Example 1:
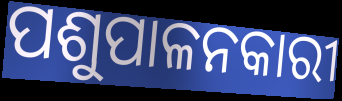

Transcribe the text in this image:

ପଶୁପାଳନକାରୀ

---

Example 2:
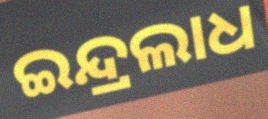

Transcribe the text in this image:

ଇନ୍ଦ୍ରଲାଧ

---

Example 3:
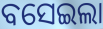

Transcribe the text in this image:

ବସେଇଲା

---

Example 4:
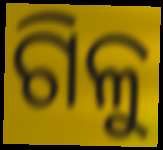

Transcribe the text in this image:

ଗିଳୁ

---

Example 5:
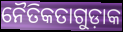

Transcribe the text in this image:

ନୈତିକତାଗୁଡ଼ାକ